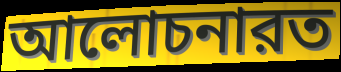
আলোচনারত